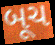
બૂચ